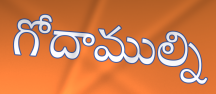
గోదాముల్ని